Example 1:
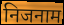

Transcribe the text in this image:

निजनाम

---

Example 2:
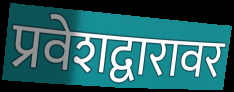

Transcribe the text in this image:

प्रवेशद्वारावर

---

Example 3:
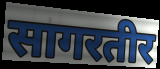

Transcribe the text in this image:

सागरतीर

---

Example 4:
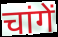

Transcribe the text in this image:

चांगें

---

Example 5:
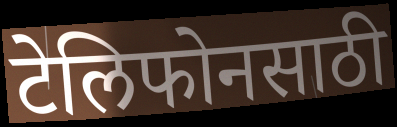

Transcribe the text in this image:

टेलिफोनसाठी